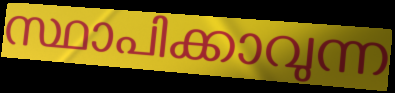
സ്ഥാപിക്കാവുന്ന